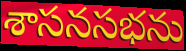
శాసనసభను